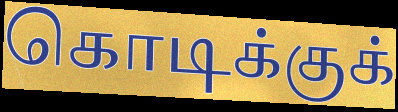
கொடிக்குக்